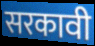
सरकावी